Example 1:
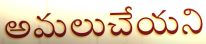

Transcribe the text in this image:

అమలుచేయని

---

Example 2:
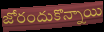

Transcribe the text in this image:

జోరందుకొన్నాయి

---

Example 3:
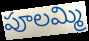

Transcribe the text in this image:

పూలమ్మి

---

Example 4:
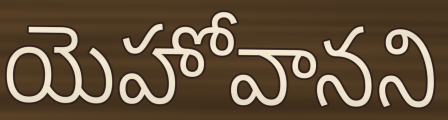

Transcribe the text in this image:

యెహోవానని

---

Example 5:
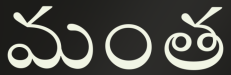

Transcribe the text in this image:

మంత